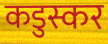
कडुस्कर